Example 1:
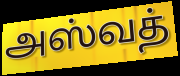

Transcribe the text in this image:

அஸ்வத்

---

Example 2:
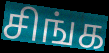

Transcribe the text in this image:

சிங்க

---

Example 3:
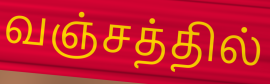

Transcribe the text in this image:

வஞ்சத்தில்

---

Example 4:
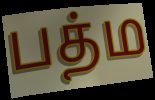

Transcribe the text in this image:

பத்ம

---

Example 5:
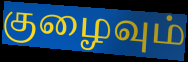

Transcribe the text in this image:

குழைவும்